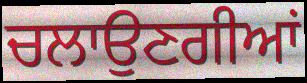
ਚਲਾਉਣਗੀਆਂ